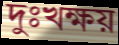
দুঃখক্ষয়